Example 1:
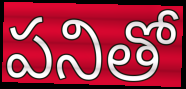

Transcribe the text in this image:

పనితో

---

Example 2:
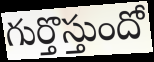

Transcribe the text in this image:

గుర్తొస్తుందో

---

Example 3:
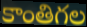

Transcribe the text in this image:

కాంతిగల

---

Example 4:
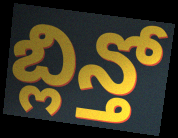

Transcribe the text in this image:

బ్లిన్తో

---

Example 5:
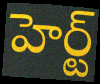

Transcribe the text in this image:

హెర్ట్